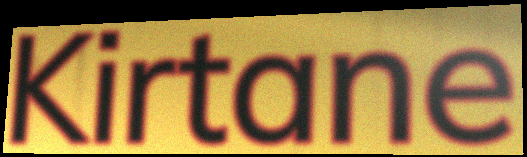
Kirtane